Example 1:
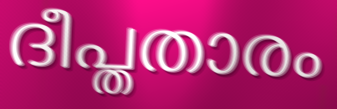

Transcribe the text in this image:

ദീപ്തതാരം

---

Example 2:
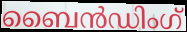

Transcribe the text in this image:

ബൈൻഡിംഗ്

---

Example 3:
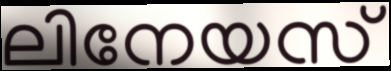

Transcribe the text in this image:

ലിനേയസ്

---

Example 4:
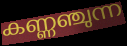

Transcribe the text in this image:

കണ്ണഞ്ചുന്ന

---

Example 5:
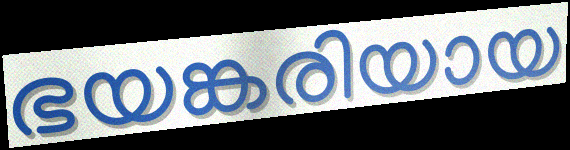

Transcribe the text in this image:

ഭയങ്കരിയായ